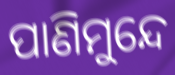
ପାଣିମୁନ୍ଦେ